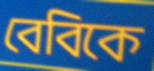
বেবিকে